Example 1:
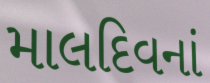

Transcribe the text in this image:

માલદિવનાં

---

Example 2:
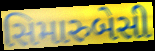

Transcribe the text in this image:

સિમારુબેસી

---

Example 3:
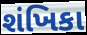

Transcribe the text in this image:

શંખિકા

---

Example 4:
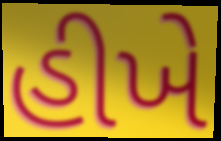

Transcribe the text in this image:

હીખે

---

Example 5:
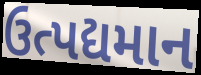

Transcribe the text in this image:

ઉત્પદ્યમાન